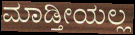
ಮಾಡ್ತೀಯಲ್ಲ